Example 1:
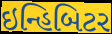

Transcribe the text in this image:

ઇન્હિબિટર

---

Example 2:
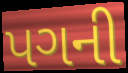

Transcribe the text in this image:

પગની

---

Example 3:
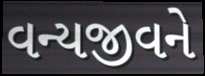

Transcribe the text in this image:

વન્યજીવને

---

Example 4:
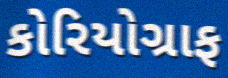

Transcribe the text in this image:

કોરિયોગ્રાફ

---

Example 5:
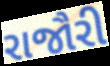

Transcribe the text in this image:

રાજૌરી